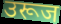
उरूज